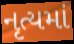
નૃત્યમાં